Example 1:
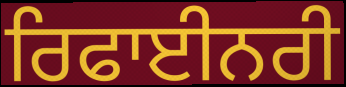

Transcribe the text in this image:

ਰਿਫਾਈਨਰੀ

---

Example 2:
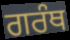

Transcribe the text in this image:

ਗਰੰਥ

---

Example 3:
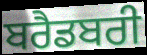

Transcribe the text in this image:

ਬਰੈਡਬਰੀ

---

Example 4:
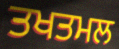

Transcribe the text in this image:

ਤਖਤਮਲ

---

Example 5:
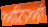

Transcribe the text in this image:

ਅਨਿਆਂ